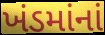
ખંડમાંનાં